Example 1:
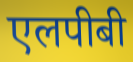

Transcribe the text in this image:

एलपीबी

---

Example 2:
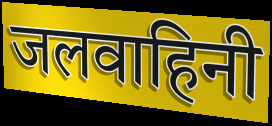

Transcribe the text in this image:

जलवाहिनी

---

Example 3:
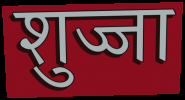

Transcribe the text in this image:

शुज्जा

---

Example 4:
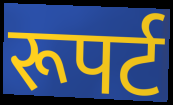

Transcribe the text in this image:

रूपर्ट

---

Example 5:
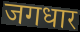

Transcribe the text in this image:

जगधार